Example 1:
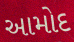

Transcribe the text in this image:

આમોદ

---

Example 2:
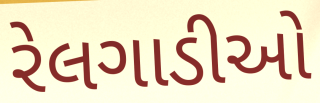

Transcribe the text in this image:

રેલગાડીઓ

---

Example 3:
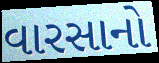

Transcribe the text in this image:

વારસાનો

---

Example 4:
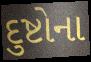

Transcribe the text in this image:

દુષ્ટોના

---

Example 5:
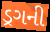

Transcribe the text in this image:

ડ્રગની